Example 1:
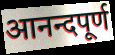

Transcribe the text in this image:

आनन्दपूर्ण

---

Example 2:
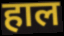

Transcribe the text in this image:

हाल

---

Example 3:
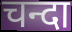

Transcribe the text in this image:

चन्दा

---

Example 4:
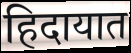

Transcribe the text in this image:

हिदायात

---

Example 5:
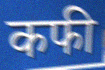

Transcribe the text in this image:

कफी